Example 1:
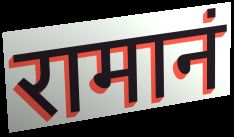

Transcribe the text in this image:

रामानं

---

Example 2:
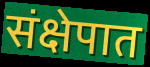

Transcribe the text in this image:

संक्षेपात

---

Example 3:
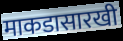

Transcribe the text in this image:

माकडासारखी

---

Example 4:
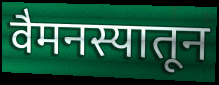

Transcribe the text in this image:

वैमनस्यातून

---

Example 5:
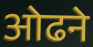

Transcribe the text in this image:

ओढने